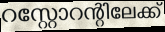
റസ്റ്റോറന്റിലേക്ക്